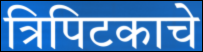
त्रिपिटकाचे